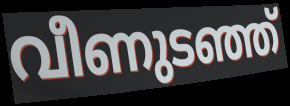
വീണുടഞ്ഞ്